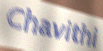
Chavithi